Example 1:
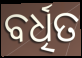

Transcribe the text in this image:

ବର୍ଧିତ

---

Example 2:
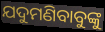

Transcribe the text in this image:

ଯଦୁମଣିବାବୁଙ୍କୁ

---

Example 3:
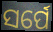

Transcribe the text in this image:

ସର୍ପେ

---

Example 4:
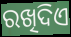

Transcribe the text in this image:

ରଖିଦିଏ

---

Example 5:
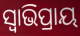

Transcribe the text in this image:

ସ୍ଵାଭିପ୍ରାୟ